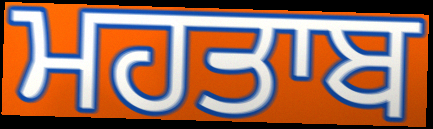
ਮਹਤਾਬ